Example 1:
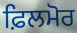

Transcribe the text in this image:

ਫ਼ਿਲਮੋਰ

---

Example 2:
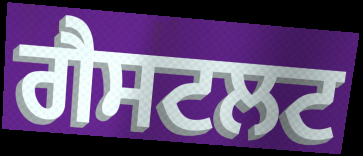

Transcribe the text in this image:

ਗੈਸਟਲਟ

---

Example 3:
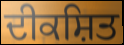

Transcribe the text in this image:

ਦੀਕਸ਼ਿਤ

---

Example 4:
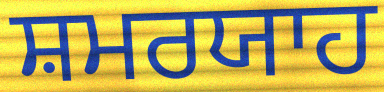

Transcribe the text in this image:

ਸ਼ਮਰਯਾਹ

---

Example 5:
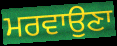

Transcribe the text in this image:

ਮਰਵਾਉਣਾ